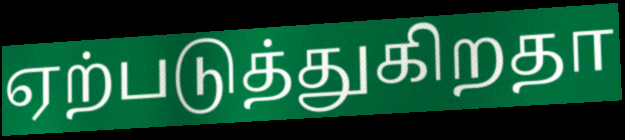
ஏற்படுத்துகிறதா